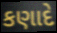
કણાદે